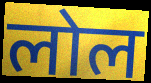
लोल